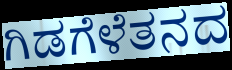
ಗಿಡಗೆಳೆತನದ